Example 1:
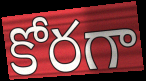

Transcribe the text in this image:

కోరగా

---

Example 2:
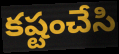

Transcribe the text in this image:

కష్టంచేసి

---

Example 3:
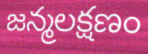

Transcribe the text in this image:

జన్మలక్షణం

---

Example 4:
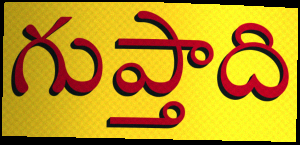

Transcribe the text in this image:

గుప్తాది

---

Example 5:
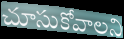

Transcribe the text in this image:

చూసుకోవాలని